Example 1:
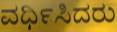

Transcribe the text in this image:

ವರ್ಧಿಸಿದರು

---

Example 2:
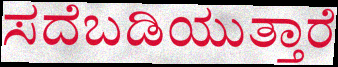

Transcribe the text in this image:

ಸದೆಬಡಿಯುತ್ತಾರೆ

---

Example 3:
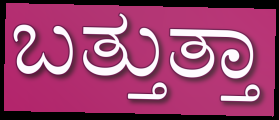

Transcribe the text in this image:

ಬತ್ತುತ್ತಾ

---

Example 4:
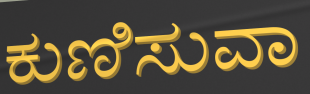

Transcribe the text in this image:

ಕುಣಿಸುವಾ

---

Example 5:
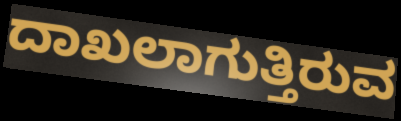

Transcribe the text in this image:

ದಾಖಲಾಗುತ್ತಿರುವ